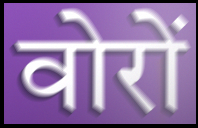
वोरों